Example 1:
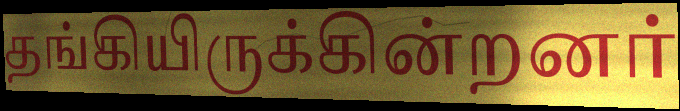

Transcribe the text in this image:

தங்கியிருக்கின்றனர்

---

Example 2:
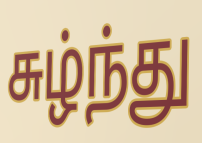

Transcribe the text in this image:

சுழ்ந்து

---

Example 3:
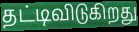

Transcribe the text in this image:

தட்டிவிடுகிறது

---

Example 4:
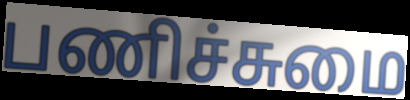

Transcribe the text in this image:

பணிச்சுமை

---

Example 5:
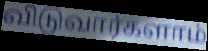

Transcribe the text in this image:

விடுவார்களாம்